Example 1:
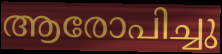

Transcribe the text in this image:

ആരോപിച്ചു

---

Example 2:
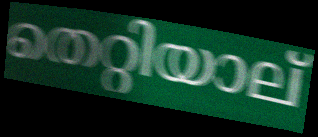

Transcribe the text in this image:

തെറ്റിയാല്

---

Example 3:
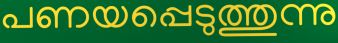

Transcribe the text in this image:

പണയപ്പെടുത്തുന്നു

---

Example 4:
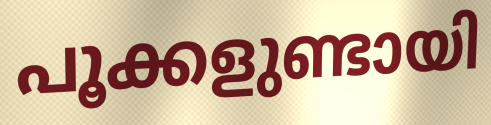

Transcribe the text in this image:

പൂക്കളുണ്ടായി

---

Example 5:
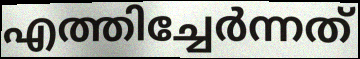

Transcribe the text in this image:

എത്തിച്ചേർന്നത്